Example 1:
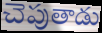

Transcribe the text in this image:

చెపుతాడు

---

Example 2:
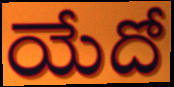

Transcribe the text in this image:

యేదో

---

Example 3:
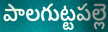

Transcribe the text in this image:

పాలగుట్టపల్లె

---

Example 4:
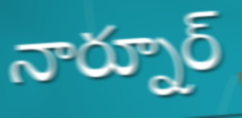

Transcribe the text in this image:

నార్నూర్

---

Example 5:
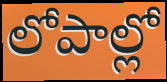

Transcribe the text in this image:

లోపాల్లో